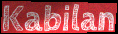
Kabilan